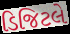
ડિજિટલે